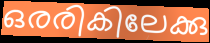
ഒരരികിലേക്കു